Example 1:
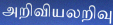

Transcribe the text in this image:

அறிவியலறிவு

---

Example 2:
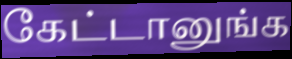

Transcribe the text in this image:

கேட்டானுங்க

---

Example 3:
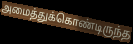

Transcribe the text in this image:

அமைத்துக்கொண்டிருந்த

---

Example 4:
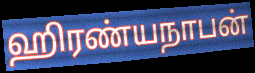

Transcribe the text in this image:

ஹிரண்யநாபன்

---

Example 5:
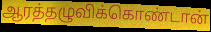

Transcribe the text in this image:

ஆரத்தழுவிக்கொண்டான்